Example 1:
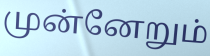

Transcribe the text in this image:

முன்னேறும்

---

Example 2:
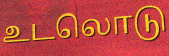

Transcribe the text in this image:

உடலொடு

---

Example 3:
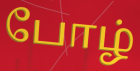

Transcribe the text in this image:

போழ்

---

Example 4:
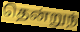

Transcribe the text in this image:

தென்றுந்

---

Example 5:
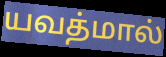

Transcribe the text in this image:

யவத்மால்